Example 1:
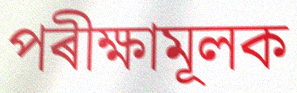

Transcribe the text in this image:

পৰীক্ষামূলক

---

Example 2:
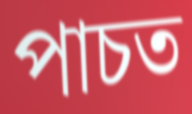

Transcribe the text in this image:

পাচত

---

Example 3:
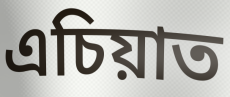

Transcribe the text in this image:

এচিয়াত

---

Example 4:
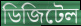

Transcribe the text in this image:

ডিজিটেল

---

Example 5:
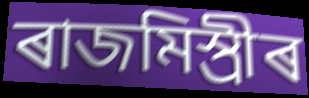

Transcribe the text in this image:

ৰাজমিস্ত্ৰীৰ